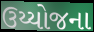
ઉય્યોજના